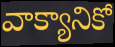
వాక్యానికో